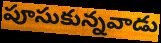
పూసుకున్నవాడు